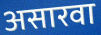
असारवा